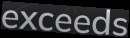
exceeds